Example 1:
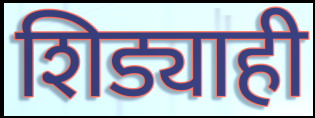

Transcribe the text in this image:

शिड्याही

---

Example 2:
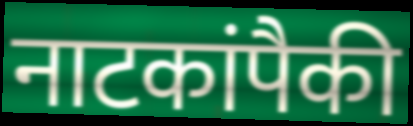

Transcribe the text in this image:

नाटकांपैकी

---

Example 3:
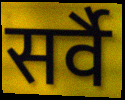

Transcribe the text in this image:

सर्वै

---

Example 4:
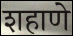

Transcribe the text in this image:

शहाणे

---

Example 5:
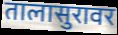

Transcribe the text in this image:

तालासुरावर